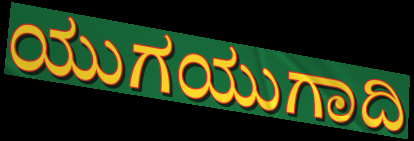
ಯುಗಯುಗಾದಿ